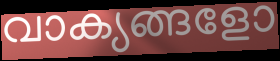
വാക്യങ്ങളോ